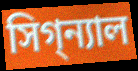
সিগ্‌ন্যাল